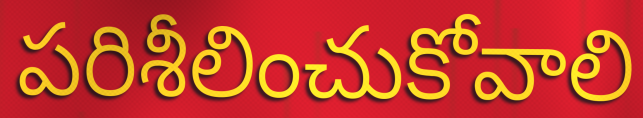
పరిశీలించుకోవాలి